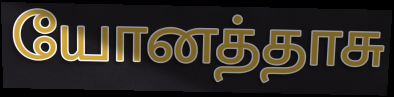
யோனத்தாசு